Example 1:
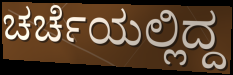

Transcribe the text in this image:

ಚರ್ಚೆಯಲ್ಲಿದ್ದ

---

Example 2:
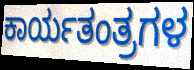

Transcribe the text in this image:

ಕಾರ್ಯತಂತ್ರಗಳ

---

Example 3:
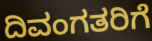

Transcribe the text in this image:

ದಿವಂಗತರಿಗೆ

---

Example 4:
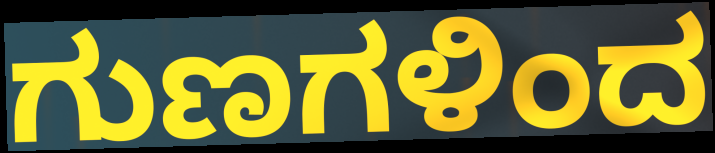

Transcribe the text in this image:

ಗುಣಗಳಿಂದ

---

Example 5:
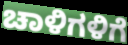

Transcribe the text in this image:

ಚಾಳಿಗಳಿಗೆ